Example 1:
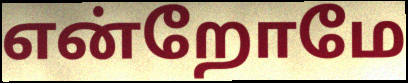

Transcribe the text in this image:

என்றோமே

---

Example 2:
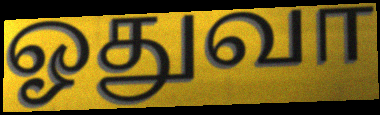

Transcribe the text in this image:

ஓதுவா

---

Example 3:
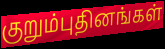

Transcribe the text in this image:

குறும்புதினங்கள்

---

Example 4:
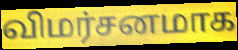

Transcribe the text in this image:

விமர்சனமாக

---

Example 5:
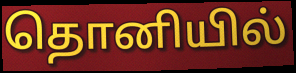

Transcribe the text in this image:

தொனியில்